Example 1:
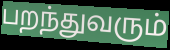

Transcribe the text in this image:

பறந்துவரும்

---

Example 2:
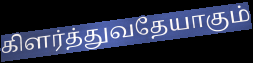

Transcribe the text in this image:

கிளர்த்துவதேயாகும்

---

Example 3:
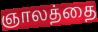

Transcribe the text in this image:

ஞாலத்தை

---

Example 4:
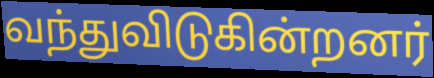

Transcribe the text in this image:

வந்துவிடுகின்றனர்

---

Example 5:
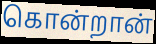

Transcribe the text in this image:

கொன்றான்